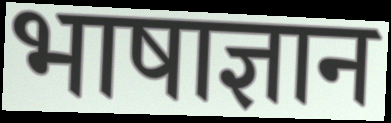
भाषाज्ञान